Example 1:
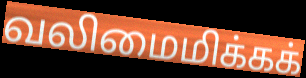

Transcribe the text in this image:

வலிமைமிக்கக்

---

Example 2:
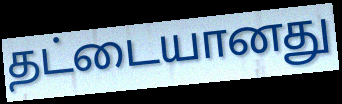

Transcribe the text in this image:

தட்டையானது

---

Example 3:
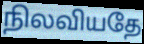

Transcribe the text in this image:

நிலவியதே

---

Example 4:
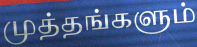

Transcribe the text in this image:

முத்தங்களும்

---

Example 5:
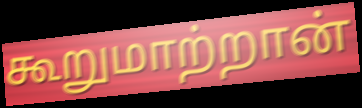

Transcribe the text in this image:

கூறுமாற்றான்